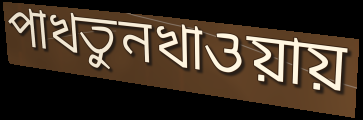
পাখতুনখাওয়ায়